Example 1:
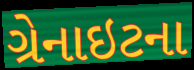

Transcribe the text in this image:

ગ્રેનાઇટના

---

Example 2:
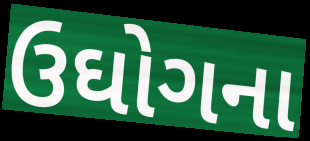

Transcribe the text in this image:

ઉઘોગના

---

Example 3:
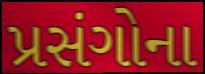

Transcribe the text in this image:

પ્રસંગોના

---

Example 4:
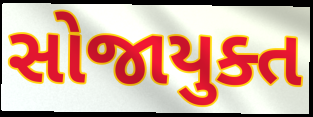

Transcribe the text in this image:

સોજાયુક્ત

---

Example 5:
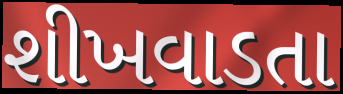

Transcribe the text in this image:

શીખવાડતા